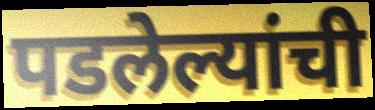
पडलेल्यांची